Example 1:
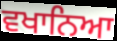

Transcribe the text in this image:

ਵਖਾਨਿਆ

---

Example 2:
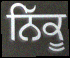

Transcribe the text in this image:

ਨਿੱਕੂ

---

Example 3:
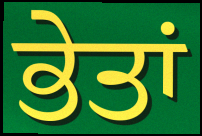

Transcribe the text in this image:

ਭੇਤਾਂ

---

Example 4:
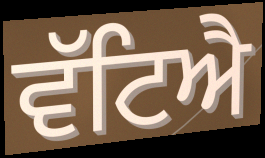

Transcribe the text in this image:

ਵੱਟਿਐ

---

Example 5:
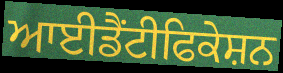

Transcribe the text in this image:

ਆਈਡੈਂਟੀਫਿਕੇਸ਼ਨ